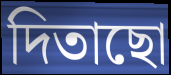
দিতাছো